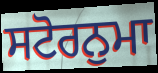
ਸਟੋਰਨੁਮਾ